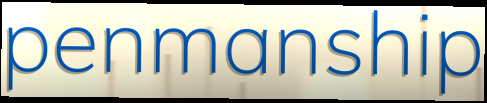
penmanship